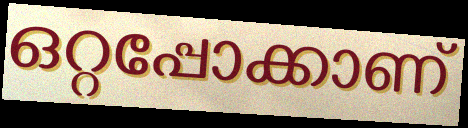
ഒറ്റപ്പോക്കാണ്